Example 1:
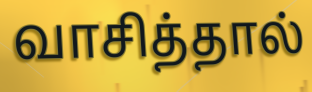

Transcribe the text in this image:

வாசித்தால்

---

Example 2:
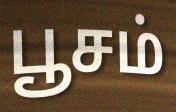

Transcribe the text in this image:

பூசம்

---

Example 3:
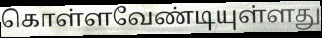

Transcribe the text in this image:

கொள்ளவேண்டியுள்ளது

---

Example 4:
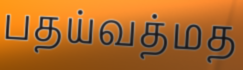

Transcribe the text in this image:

பதய்வத்மத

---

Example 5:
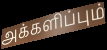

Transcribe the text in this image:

அக்களிப்பும்